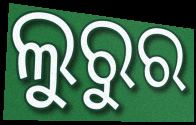
ଲୁରୁର